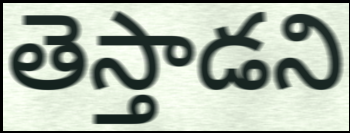
తెస్తాడని